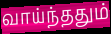
வாய்ந்ததும்